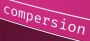
compersion